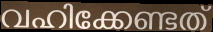
വഹിക്കേണ്ടത്